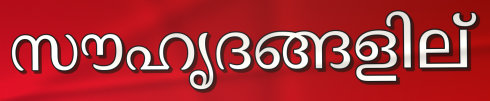
സൗഹൃദങ്ങളില്